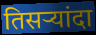
तिसऱ्यांदा